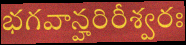
భగవాన్హరిరీశ్వరః